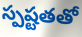
స్పష్టతతో